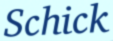
Schick